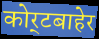
कोर्टबाहेर